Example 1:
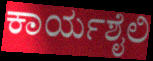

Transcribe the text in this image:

ಕಾರ್ಯಶೈಲಿ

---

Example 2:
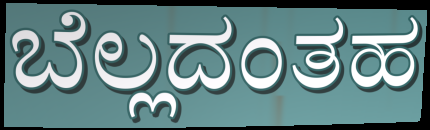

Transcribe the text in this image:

ಬೆಲ್ಲದಂತಹ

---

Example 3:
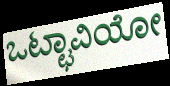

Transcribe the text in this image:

ಒಟ್ಟಾವಿಯೋ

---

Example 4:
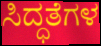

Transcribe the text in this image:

ಸಿದ್ಧತೆಗಳ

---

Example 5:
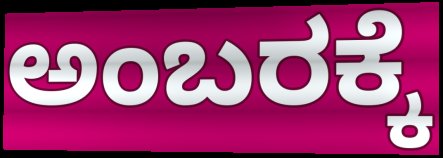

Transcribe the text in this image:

ಅಂಬರಕ್ಕೆ